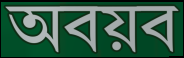
অবয়ব